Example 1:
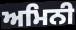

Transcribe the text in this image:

ਅਮਿਨੀ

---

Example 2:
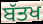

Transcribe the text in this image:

ਬੱਤਖ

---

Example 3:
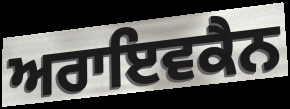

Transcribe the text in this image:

ਅਰਾਇਵਕੈਨ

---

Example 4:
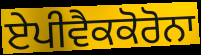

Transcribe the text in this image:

ਏਪੀਵੈਕਕੋਰੋਨਾ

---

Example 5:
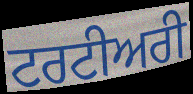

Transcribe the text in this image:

ਟਰਟੀਅਰੀ